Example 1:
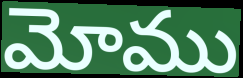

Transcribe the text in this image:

మోము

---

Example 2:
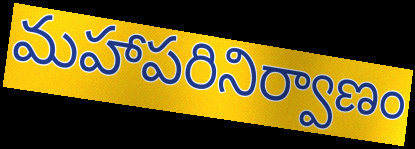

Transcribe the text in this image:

మహాపరినిర్వాణం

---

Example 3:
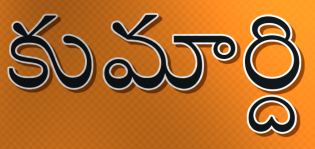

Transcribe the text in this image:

కుమార్ది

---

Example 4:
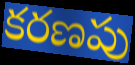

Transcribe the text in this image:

కరణపు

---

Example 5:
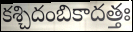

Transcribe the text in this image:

కశ్చిదంబికాదత్తః